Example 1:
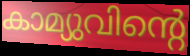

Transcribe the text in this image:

കാമ്യുവിന്റെ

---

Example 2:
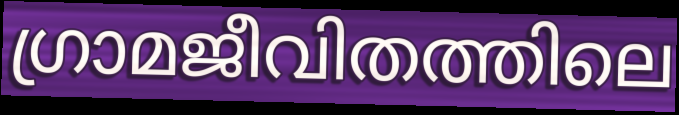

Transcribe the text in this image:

ഗ്രാമജീവിതത്തിലെ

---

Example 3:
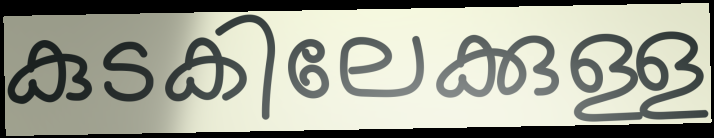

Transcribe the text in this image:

കുടകിലേക്കുള്ള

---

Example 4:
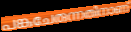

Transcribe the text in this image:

പങ്കുചേരുന്നതിനാണ്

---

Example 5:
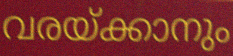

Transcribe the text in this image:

വരയ്ക്കാനും